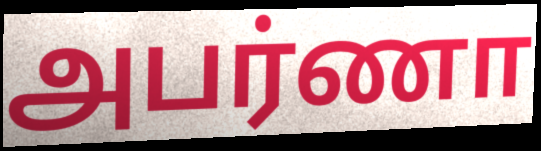
அபர்ணா